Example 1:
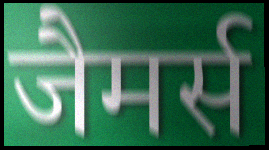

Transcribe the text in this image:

जैमर्स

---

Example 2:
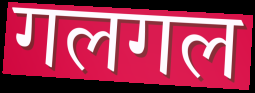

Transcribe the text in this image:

गलगल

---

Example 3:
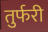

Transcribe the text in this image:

तुर्फरी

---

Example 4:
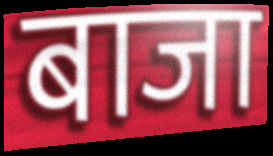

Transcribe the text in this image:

बाजा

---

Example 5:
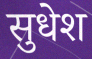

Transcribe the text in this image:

सुधेश